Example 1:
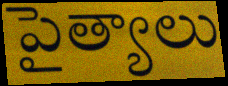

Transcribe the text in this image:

పైత్యాలు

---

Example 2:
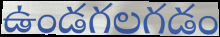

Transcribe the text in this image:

ఉండగలగడం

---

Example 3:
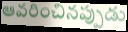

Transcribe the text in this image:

ఆవరించినప్పుడు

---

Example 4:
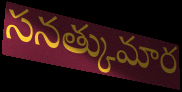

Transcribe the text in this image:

సనత్కుమార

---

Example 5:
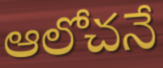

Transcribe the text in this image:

ఆలోచనే